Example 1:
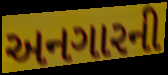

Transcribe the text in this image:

અનગારની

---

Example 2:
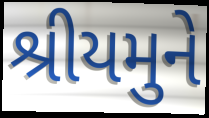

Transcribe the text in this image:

શ્રીયમુને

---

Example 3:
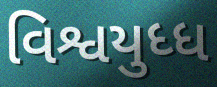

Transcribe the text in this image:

વિશ્વયુધ્ધ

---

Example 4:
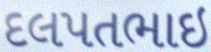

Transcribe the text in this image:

દલપતભાઇ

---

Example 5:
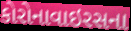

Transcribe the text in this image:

કોરોનાવાઇરસના